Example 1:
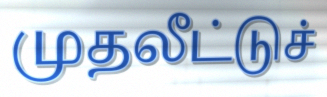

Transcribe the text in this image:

முதலீட்டுச்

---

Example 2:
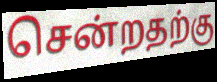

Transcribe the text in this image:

சென்றதற்கு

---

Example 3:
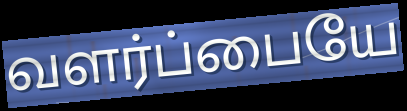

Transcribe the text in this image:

வளர்ப்பையே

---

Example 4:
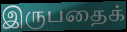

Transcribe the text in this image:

இருபதைக்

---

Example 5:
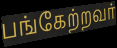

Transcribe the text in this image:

பங்கேற்றவர்